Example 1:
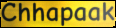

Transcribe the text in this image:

Chhapaak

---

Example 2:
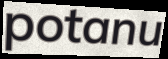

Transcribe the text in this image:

potanu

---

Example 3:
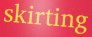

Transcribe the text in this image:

skirting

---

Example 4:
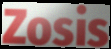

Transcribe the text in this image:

Zosis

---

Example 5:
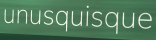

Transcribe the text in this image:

unusquisque